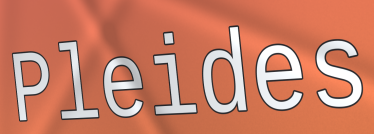
Pleides